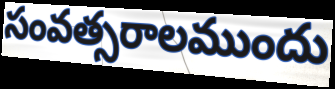
సంవత్సరాలముందు